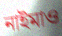
নাইমাও